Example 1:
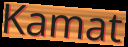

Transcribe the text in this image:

Kamat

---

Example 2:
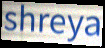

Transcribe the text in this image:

shreya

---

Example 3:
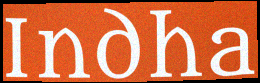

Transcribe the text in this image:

Indha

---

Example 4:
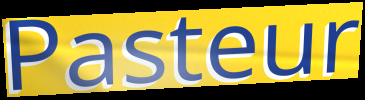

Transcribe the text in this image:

Pasteur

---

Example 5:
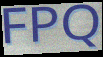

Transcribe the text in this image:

FPQ